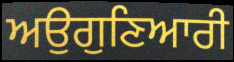
ਅਉਗੁਣਿਆਰੀ